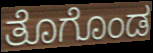
ತೊಗೊಂಡ